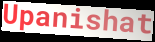
Upanishat